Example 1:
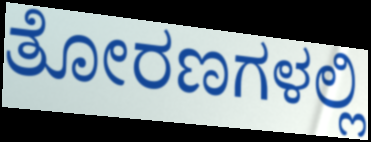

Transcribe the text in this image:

ತೋರಣಗಳಲ್ಲಿ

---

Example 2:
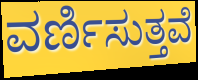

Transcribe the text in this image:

ವರ್ಣಿಸುತ್ತವೆ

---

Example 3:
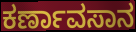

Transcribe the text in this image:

ಕರ್ಣಾವಸಾನ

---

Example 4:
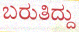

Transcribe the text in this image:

ಬರುತಿದ್ದು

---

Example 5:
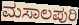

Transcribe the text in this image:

ಮಸಾಲಪುರಿ